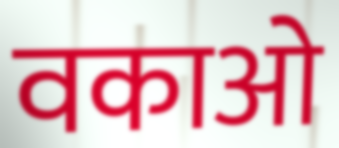
वकाओ